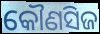
କୌଣସିଜ